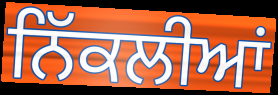
ਨਿੱਕਲੀਆਂ